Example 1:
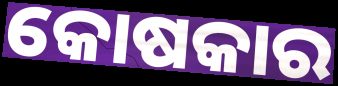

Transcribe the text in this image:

କୋଷକାର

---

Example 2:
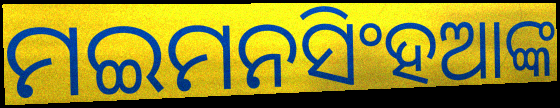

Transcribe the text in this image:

ମଇମନସିଂହଆଙ୍କ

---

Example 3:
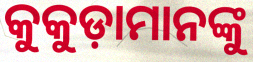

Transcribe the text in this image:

କୁକୁଡ଼ାମାନଙ୍କୁ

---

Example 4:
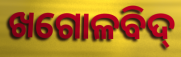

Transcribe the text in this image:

ଖଗୋଳବିଦ୍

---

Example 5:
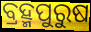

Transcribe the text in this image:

ବ୍ରହ୍ମପୁରୁଷ